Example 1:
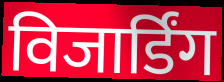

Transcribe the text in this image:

विजार्डिंग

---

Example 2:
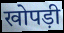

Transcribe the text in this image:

खोपड़ी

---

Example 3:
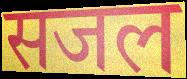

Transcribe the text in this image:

सजल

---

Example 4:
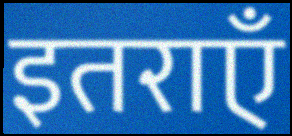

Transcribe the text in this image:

इतराएँ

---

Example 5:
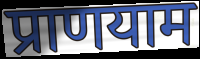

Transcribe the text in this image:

प्राणयाम